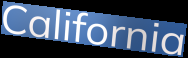
California